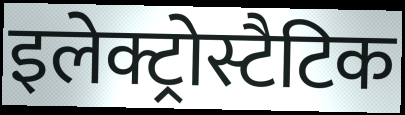
इलेक्ट्रोस्टैटिक